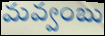
మవ్వంబు